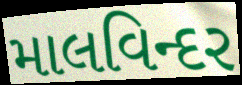
માલવિન્દર